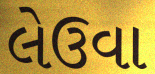
લેઉવા